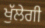
ਖੁੱਲੇਗੀ